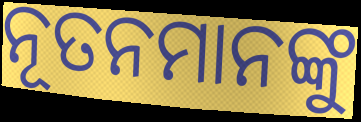
ନୂତନମାନଙ୍କୁ